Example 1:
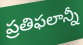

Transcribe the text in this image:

ప్రతిఫలాన్నీ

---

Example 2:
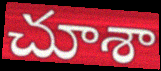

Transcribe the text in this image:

చూశా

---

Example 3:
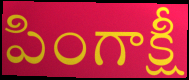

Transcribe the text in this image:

పింగాక్షీ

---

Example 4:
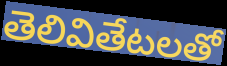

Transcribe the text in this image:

తెలివితేటలతో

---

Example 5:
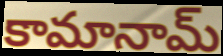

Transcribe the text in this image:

కామానామ్